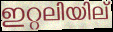
ഇറ്റലിയില്